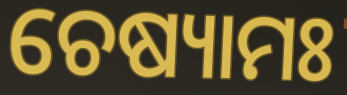
ଚେଷ୍ୟାମଃ